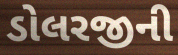
ડોલરજીની